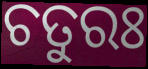
ଚତୁରଃ